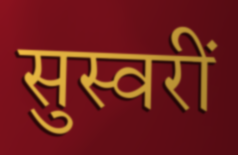
सुस्वरीं